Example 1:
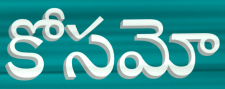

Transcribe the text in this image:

కోసమో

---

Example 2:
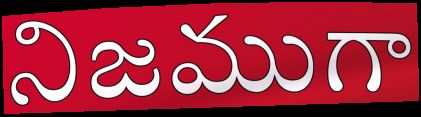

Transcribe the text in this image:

నిజముగా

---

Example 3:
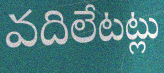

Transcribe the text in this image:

వదిలేటట్లు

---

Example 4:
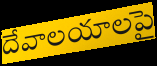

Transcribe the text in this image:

దేవాలయాలపై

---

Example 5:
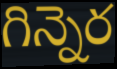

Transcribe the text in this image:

గిన్నెర